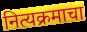
नित्यक्रमाचा